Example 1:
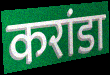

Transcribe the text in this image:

करांडा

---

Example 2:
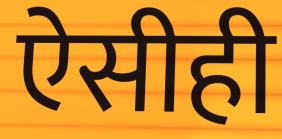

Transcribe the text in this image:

ऐसीही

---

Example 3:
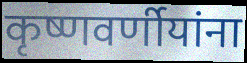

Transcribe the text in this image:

कृष्णवर्णीयांना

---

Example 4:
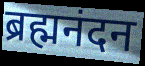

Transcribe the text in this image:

ब्रह्मनंदन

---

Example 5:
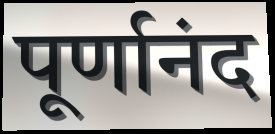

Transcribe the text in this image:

पूर्णानंद